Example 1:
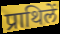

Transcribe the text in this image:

प्राथिलें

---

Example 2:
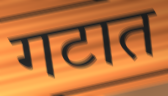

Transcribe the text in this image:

गटात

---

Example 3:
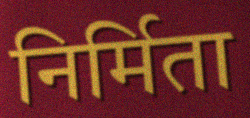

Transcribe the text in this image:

निर्मिता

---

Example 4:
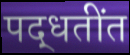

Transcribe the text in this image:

पद्धतींत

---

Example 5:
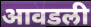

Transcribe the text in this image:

आवडली